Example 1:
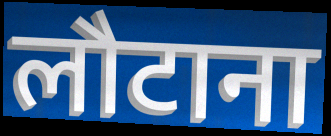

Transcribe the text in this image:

लौटाना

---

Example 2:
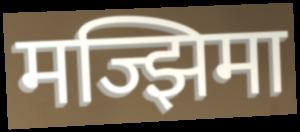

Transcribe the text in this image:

मज्झिमा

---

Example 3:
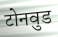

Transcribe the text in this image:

टोनवुड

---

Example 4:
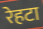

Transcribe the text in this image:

रेहटा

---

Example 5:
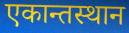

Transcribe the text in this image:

एकान्तस्थान